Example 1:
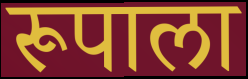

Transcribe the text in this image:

रूपाला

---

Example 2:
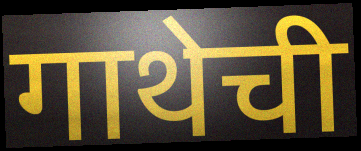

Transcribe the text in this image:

गाथेची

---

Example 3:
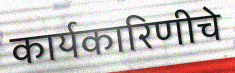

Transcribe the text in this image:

कार्यकारिणीचे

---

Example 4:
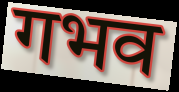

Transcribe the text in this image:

गभव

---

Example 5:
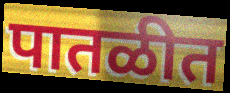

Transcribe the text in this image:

पातळीत